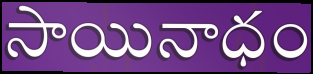
సాయినాధం